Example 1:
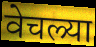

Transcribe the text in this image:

वेचल्या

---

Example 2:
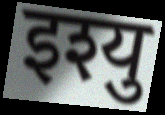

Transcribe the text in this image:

इश्यु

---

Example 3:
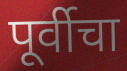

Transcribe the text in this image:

पूर्वीचा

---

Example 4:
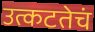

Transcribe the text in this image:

उत्कटतेचं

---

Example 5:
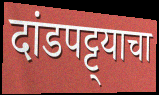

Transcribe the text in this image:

दांडपट्ट्याचा